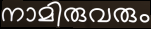
നാമിരുവരും